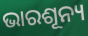
ଭାରଶୂନ୍ୟ